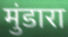
मुंडारा